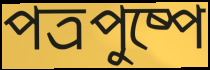
পত্রপুষ্পে